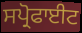
ਸਪ੍ਰੋਫਾਈਟ